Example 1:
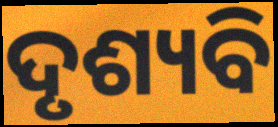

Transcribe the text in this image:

ଦୃଶ୍ୟବି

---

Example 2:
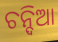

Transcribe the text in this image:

ଚନ୍ଦିଆ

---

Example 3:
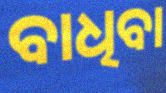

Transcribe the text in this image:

ବାଧିବା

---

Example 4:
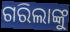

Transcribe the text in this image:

ଗରିଲାଙ୍କୁ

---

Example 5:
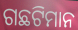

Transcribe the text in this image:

ଗଛଟିମାନ